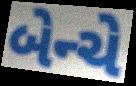
બેન્ચે